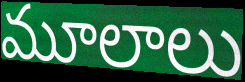
మూలాలు